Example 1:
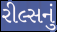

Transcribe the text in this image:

રીલ્સનું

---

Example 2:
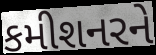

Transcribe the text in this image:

કમીશનરને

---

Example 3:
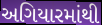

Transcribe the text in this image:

અગિયારમાંથી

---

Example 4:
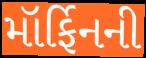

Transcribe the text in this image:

મૉર્ફિનની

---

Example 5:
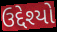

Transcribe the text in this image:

ઉદ્દેશ્યો